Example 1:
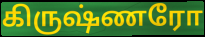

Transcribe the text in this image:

கிருஷ்ணரோ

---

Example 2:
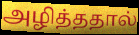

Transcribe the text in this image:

அழித்ததால்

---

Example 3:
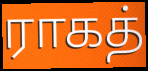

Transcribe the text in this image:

ராகத்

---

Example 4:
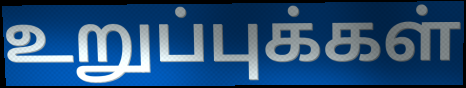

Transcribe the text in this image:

உறுப்புக்கள்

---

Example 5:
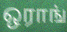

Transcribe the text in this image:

ஒராங்